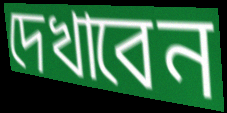
দেখাবেন